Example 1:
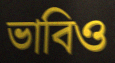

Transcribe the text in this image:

ভাবিও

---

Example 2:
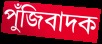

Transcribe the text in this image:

পুঁজিবাদক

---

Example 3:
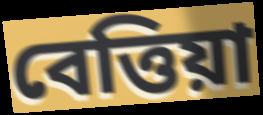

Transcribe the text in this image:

বেত্তিয়া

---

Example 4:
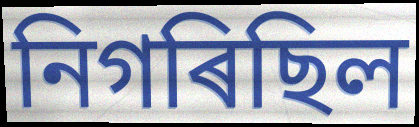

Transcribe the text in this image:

নিগৰিছিল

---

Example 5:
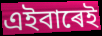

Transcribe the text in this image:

এইবাৰেই